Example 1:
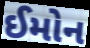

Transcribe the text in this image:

ઈમોન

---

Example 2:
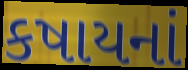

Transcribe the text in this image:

કષાયનાં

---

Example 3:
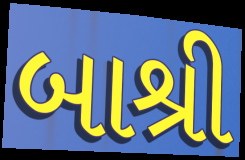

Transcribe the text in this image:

બાશ્રી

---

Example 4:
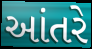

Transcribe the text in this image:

આંતરે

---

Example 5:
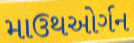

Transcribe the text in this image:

માઉથઓર્ગન